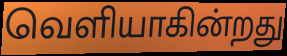
வெளியாகின்றது